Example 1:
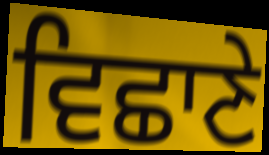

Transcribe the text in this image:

ਵਿਛਾਣੇ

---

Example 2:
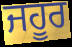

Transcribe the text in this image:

ਜਹੂਰ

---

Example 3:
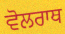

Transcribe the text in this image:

ਵੋਲਰਾਥ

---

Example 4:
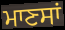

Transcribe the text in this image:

ਮਾਣਸਾਂ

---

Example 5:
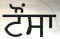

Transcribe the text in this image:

ਟੌਂਸਾ